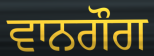
ਵਾਨਗੌਗ